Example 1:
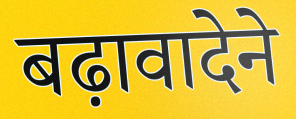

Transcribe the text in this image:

बढ़ावादेने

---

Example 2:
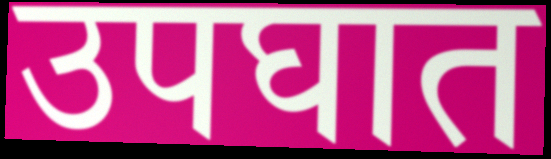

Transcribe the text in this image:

उपघात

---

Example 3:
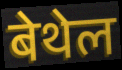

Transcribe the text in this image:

बेथेल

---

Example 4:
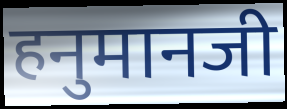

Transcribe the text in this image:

हनुमानजी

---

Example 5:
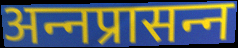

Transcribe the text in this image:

अन्नप्रासन्न